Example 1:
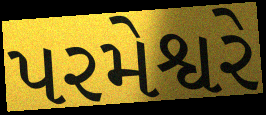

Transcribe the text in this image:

પરમેશ્વરે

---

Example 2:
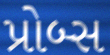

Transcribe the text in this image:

પ્રોબ્સ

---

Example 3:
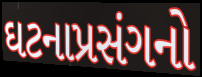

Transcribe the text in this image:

ઘટનાપ્રસંગનો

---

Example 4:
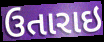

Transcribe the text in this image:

ઉતારાઇ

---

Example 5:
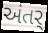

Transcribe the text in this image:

અંતર્